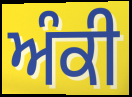
ਅੰਕੀ